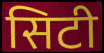
सिटी